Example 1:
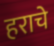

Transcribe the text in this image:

हराचे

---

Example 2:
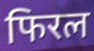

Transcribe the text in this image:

फिरल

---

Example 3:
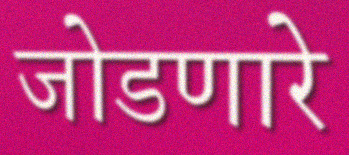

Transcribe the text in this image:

जोडणारे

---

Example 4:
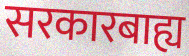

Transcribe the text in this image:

सरकारबाह्य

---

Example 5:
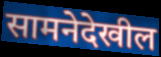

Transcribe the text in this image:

सामनेदेखील